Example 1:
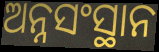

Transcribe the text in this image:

ଅନ୍ନସଂସ୍ଥାନ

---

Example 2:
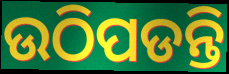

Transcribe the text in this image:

ଉଠିପଡନ୍ତି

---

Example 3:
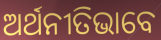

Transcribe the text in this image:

ଅର୍ଥନୀତିଭାବେ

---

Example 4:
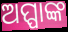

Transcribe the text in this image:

ଅପ୍ପାଙ୍କ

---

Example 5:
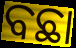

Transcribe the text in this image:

ବଛା